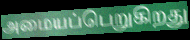
அமையப்பெறுகிறது